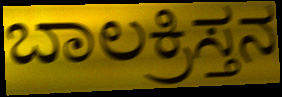
ಬಾಲಕ್ರಿಸ್ತನ